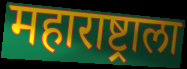
महाराष्ट्राला